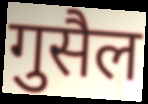
गुसैल